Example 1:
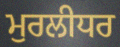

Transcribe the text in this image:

ਮੁਰਲੀਧਰ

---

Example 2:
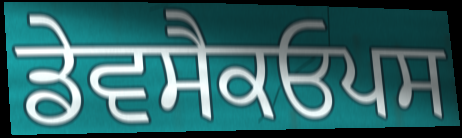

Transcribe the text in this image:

ਡੇਵਸੈਕਓਪਸ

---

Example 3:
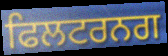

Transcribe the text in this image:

ਫਿਲਟਰਨਗ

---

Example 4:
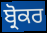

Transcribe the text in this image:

ਬ੍ਰੋਕਰ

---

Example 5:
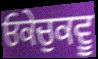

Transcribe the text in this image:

ਓਕੇਚੁਕਵੂ